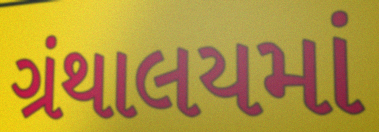
ગ્રંથાલયમાં